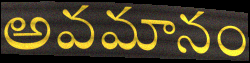
అవమానం